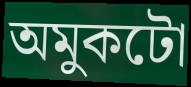
অমুকটো